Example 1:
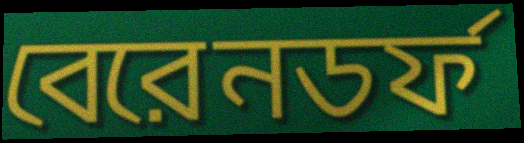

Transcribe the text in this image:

বেরেনডর্ফ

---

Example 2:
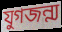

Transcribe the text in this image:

যুগজন্ম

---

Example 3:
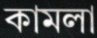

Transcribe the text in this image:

কামলা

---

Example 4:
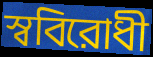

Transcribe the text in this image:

স্ববিরোধী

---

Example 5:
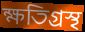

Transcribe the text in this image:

ক্ষতিগ্রস্থ